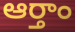
ఆర్తాం